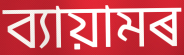
ব্যায়ামৰ